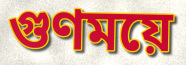
গুণময়ে